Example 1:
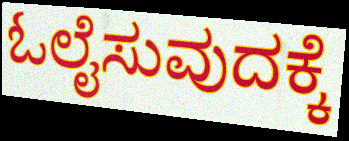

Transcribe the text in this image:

ಓಲೈಸುವುದಕ್ಕೆ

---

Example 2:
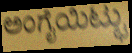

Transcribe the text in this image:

ಅಂಗೈಯಿಟ್ಟು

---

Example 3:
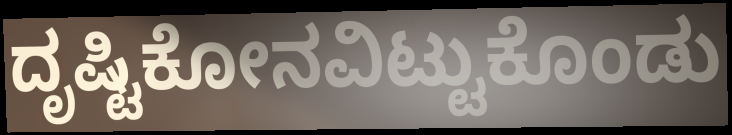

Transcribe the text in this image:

ದೃಷ್ಟಿಕೋನವಿಟ್ಟುಕೊಂಡು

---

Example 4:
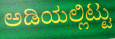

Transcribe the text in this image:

ಅಡಿಯಲ್ಲಿಟ್ಟು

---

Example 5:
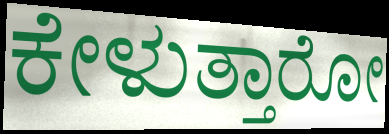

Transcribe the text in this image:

ಕೇಳುತ್ತಾರೋ